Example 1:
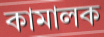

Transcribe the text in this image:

কামালক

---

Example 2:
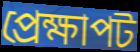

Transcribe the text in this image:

প্ৰেক্ষাপট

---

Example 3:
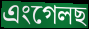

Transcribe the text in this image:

এংগেলছ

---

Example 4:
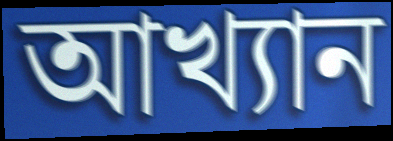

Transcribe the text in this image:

আখ্যান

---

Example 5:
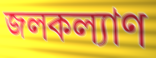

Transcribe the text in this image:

জলকল্যাণ